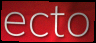
ecto